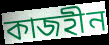
কাজহীন